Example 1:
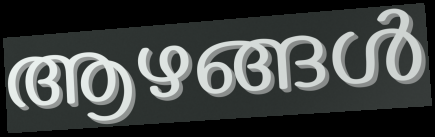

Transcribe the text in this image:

ആഴങ്ങൾ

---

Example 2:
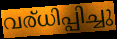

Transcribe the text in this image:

വര്ധിപ്പിച്ചു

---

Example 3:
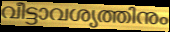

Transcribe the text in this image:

വീട്ടാവശ്യത്തിനും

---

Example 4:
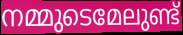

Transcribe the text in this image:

നമ്മുടെമേലുണ്ട്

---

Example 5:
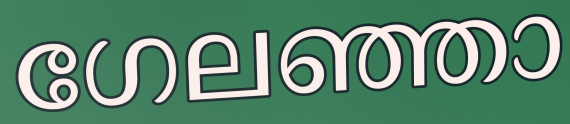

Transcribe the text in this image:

ഗേലഞ്ഞാ